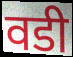
वडी